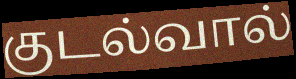
குடல்வால்